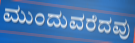
ಮುಂದುವರೆದವು